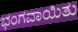
ಭಂಗವಾಯಿತು